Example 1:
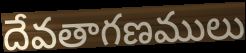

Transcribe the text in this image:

దేవతాగణములు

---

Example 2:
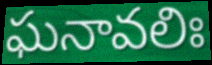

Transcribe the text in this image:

ఘనావలిః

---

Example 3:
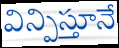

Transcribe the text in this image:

విన్పిస్తూనే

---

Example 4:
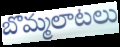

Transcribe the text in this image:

బొమ్మలాటలు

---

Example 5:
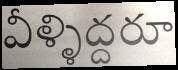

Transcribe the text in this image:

వీళ్ళిద్దరూ